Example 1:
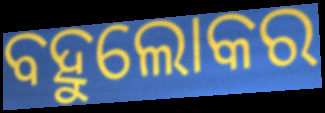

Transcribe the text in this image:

ବହୁଲୋକର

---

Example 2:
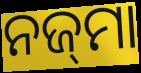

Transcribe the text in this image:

ନଜ୍‌ମା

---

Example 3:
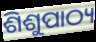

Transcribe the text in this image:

ଶିଶୁପାଠ୍ୟ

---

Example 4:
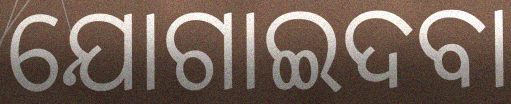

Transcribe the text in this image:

ଯୋଗାଇଦବା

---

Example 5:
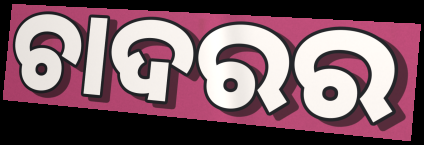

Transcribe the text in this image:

ଚାଦରର